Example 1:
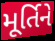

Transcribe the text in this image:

મૂર્તિને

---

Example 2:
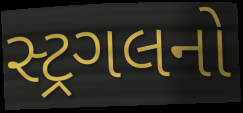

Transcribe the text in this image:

સ્ટ્રગલનો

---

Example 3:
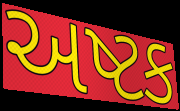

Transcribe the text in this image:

અષ્ટક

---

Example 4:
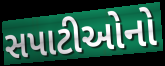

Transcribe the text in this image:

સપાટીઓનો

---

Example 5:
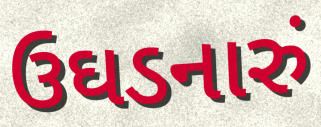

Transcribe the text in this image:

ઉઘડનારું